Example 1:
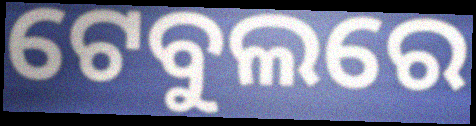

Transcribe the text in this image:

ଟେବୁଲରେ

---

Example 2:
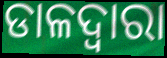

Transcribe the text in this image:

ଡାଳଦ୍ୱାରା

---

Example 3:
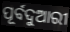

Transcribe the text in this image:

ପୂର୍ବଦୁଆରୀ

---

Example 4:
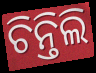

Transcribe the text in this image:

ଚିନ୍ତିଲି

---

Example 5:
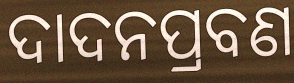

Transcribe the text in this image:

ଦାଦନପ୍ରବଣ